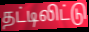
தட்டிலிட்டு